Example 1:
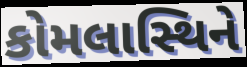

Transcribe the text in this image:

કોમલાસ્થિને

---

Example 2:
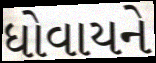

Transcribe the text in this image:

ધોવાયને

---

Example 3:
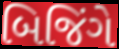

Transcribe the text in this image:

બિજિંગે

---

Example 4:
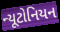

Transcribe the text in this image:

ન્યૂટોનિયન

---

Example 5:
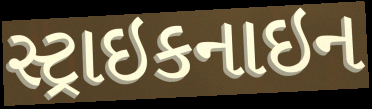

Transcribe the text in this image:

સ્ટ્રાઇકનાઇન